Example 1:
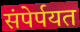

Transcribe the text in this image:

संपेर्पयत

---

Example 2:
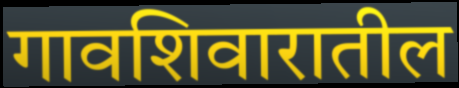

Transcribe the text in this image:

गावशिवारातील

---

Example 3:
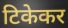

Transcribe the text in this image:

टिकेकर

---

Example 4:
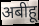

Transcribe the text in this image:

अबीहू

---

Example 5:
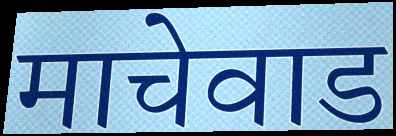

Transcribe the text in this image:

माचेवाड